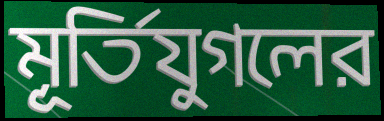
মূর্তিযুগলের